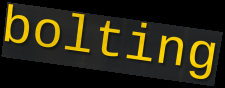
bolting